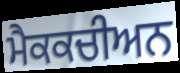
ਮੈਕਕਚੀਅਨ